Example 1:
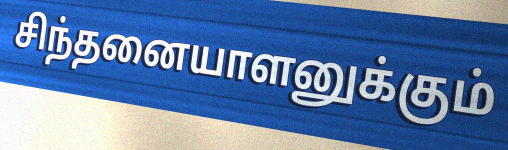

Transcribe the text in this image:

சிந்தனையாளனுக்கும்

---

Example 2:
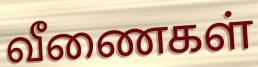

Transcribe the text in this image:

வீணைகள்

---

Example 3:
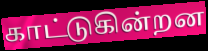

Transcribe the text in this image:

காட்டுகின்றன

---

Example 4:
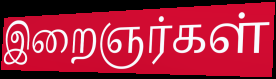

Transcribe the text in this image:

இறைஞர்கள்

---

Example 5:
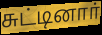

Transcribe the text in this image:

சுட்டினார்